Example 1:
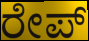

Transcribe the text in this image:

ರೇಪ್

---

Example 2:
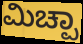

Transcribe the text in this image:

ಮಿಚ್ಪಾ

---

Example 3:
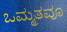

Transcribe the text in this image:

ಒಮ್ಮತವೂ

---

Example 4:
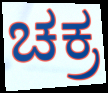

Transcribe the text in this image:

ಚಕ್ರ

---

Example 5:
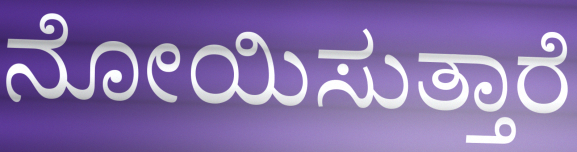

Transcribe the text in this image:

ನೋಯಿಸುತ್ತಾರೆ